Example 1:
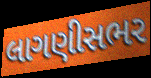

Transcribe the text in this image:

લાગણીસભર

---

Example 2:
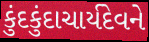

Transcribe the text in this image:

કુંદકુંદાચાર્યદેવને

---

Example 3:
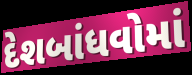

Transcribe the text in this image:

દેશબાંધવોમાં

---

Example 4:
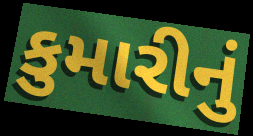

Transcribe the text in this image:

કુમારીનું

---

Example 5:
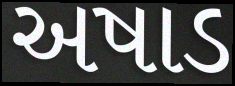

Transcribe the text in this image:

અષાડ